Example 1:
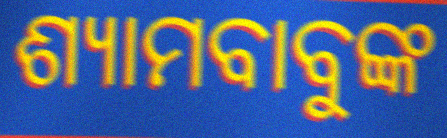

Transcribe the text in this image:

ଶ୍ୟାମବାବୁଙ୍କ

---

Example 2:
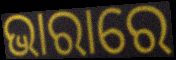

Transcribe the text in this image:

ଭାରାରେ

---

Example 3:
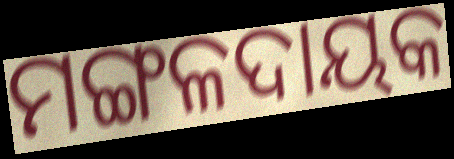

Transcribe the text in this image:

ମଙ୍ଗଳଦାୟକ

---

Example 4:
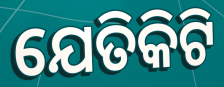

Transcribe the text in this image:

ଯେତିକିଟି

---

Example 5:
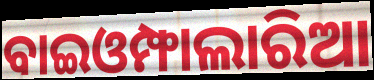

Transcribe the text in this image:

ବାଇଓମ୍ଫାଲାରିଆ